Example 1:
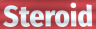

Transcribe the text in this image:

Steroid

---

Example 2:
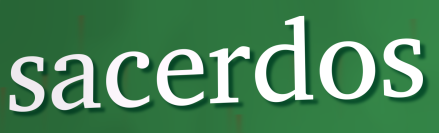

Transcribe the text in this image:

sacerdos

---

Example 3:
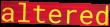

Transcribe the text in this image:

altered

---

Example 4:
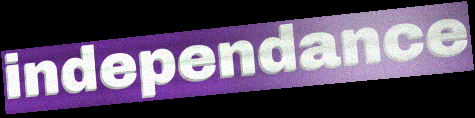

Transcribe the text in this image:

independance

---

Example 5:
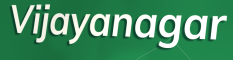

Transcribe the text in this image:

Vijayanagar